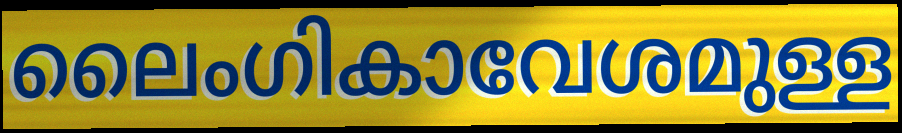
ലൈംഗികാവേശമുള്ള